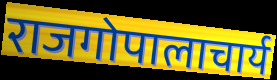
राजगोपालाचार्य